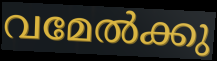
വമേൽക്കു